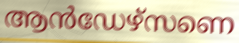
ആൻഡേഴ്സണെ